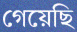
গেয়েছি